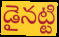
డైనట్టి